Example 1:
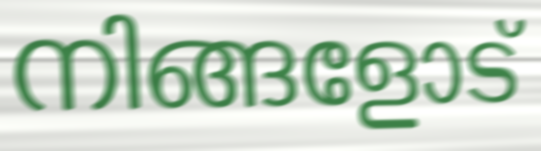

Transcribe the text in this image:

നിങ്ങളോട്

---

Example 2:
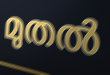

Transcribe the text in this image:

മുതൽ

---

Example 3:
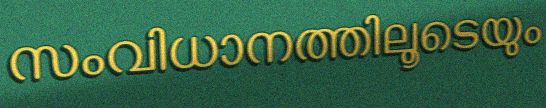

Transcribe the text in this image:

സംവിധാനത്തിലൂടെയും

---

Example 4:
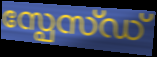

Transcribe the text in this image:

സ്പേസ്ഡ്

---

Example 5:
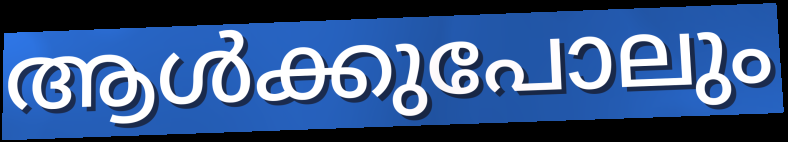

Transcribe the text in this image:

ആൾക്കുപോലും